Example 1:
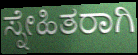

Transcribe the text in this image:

ಸ್ನೇಹಿತರಾಗಿ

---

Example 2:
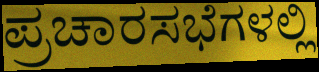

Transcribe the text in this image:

ಪ್ರಚಾರಸಭೆಗಳಲ್ಲಿ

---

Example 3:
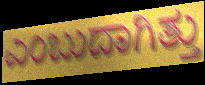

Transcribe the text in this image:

ಎಂಬುದಾಗಿತ್ತು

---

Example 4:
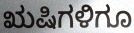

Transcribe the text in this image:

ಋಷಿಗಳಿಗೂ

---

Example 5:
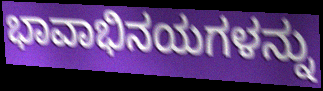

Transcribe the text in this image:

ಭಾವಾಭಿನಯಗಳನ್ನು